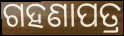
ଗହଣାପତ୍ର